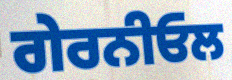
ਗੇਰਨੀਓਲ